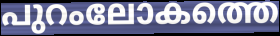
പുറംലോകത്തെ